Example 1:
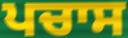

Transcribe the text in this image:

ਪਚਾਸ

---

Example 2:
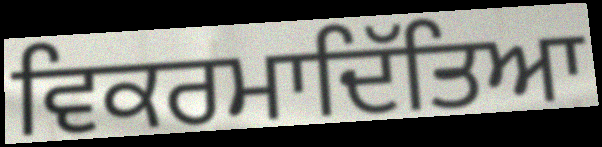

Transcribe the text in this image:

ਵਿਕਰਮਾਦਿੱਤਿਆ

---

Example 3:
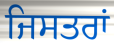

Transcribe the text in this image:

ਜਿਸਤਰਾਂ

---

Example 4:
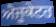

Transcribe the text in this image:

ਐਜੂਕੇਟਰ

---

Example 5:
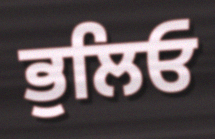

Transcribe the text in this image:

ਭੁਲਿਓ